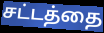
சட்டத்தை